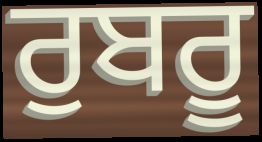
ਰੁਬਰੂ